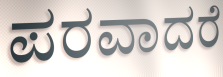
ಪರವಾದರೆ